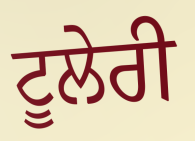
ਟੂਲੇਰੀ